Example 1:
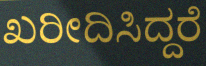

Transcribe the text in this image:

ಖರೀದಿಸಿದ್ದರೆ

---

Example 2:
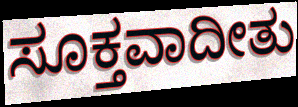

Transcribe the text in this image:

ಸೂಕ್ತವಾದೀತು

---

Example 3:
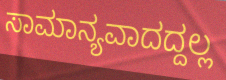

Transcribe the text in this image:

ಸಾಮಾನ್ಯವಾದದ್ದಲ್ಲ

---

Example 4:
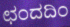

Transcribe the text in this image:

ಛಂದದಿಂ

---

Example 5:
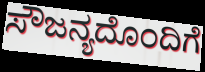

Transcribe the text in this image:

ಸೌಜನ್ಯದೊಂದಿಗೆ